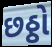
છઠ્ઠો